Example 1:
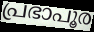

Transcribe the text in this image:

പ്രഭാപൂര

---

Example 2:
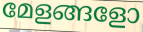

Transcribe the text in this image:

മേളങ്ങളോ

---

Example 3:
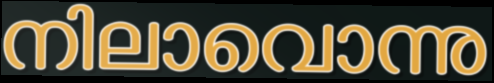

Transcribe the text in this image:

നിലാവൊന്നു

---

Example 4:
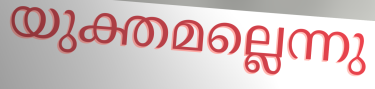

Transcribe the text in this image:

യുക്തമല്ലെന്നു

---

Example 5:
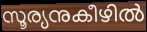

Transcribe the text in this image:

സൂര്യനുകീഴിൽ